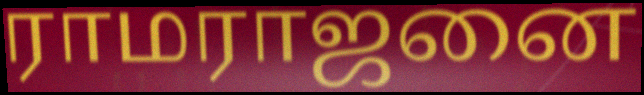
ராமராஜனை